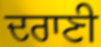
ਦਰਾਣੀ